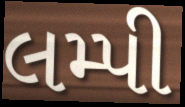
લમ્પી